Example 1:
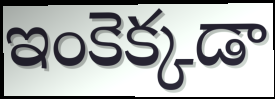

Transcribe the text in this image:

ఇంకెక్కడా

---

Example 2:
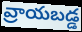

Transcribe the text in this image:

వ్రాయబడ్డ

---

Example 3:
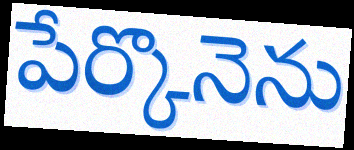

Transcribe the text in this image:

పేర్కొనెను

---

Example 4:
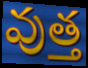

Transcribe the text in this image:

వుత్త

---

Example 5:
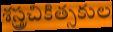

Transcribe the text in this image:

శస్త్రచికిత్సకుల